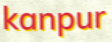
kanpur